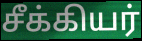
சீக்கியர்